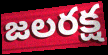
జలరక్ష